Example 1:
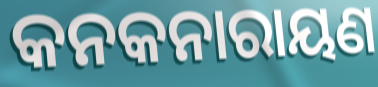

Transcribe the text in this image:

କନକନାରାୟଣ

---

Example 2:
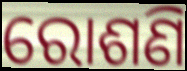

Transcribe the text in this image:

ରୋଶଣି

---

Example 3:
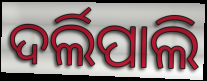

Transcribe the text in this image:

ଦର୍ଲିପାଲି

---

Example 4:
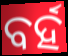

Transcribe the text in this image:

ବର୍ହ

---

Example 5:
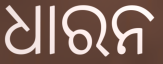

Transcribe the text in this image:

ଧାରନ